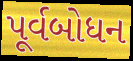
પૂર્વબોધન